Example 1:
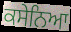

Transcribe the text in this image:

ਕਸੇਨਿਆ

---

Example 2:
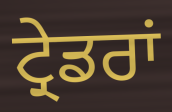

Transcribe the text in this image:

ਟ੍ਰੇਡਰਾਂ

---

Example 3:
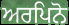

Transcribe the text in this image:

ਅਰਪਿਨੋ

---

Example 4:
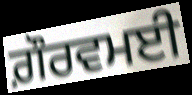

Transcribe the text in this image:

ਗ਼ੌਰਵਮਈ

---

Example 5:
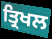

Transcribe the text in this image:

ਤ੍ਰਿਖਲ